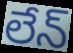
లేన్